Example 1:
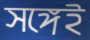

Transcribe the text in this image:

সঙ্গেই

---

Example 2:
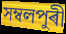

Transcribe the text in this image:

সম্বলপুৰী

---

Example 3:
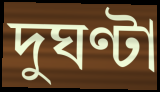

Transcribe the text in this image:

দুঘণ্টা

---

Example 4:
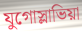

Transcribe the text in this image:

যুগোস্লাভিয়া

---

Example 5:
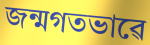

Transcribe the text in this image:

জন্মগতভাৱে